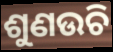
ଶୁଣଉଚି